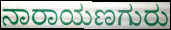
ನಾರಾಯಣಗುರು